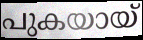
പുകയായ്